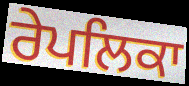
ਰੇਪਲਿਕਾ